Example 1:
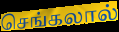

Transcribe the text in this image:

செங்கலால்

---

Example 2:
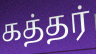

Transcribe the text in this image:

கத்தர்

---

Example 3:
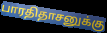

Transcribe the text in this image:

பாரதிதாசனுக்கு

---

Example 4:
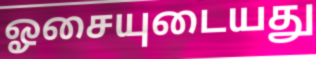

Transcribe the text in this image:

ஓசையுடையது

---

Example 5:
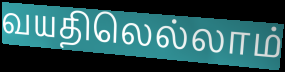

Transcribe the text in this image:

வயதிலெல்லாம்